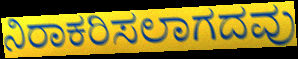
ನಿರಾಕರಿಸಲಾಗದವು